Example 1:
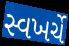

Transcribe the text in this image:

સ્વખર્ચે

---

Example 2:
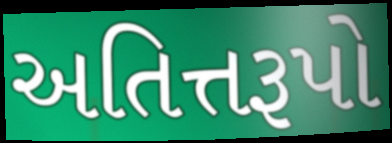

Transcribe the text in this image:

અતિત્તરૂપો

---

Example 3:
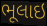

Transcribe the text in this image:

ભૂલાઇ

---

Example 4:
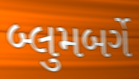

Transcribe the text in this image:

બ્લુમબર્ગે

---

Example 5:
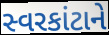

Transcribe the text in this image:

સ્વરકાંટાને